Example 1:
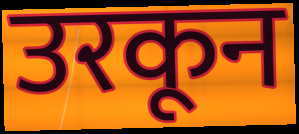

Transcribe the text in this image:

उरकून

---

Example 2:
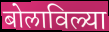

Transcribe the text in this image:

बोलाविल्या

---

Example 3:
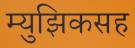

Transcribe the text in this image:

म्युझिकसह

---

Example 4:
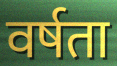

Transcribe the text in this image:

वर्षता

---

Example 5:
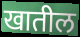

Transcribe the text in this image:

खातील